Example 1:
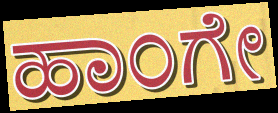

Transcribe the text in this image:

ಹಾಂಗೇ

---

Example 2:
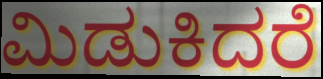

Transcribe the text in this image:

ಮಿಡುಕಿದರೆ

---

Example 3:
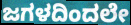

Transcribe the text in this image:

ಜಗಳದಿಂದಲೇ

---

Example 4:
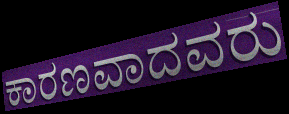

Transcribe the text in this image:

ಕಾರಣವಾದವರು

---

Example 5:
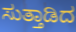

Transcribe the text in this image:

ಸುತ್ತಾಡಿದ